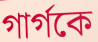
গার্গকে